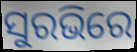
ସୁରଭିରେ